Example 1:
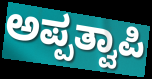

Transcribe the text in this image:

ಅಪ್ಪತ್ವಾಪಿ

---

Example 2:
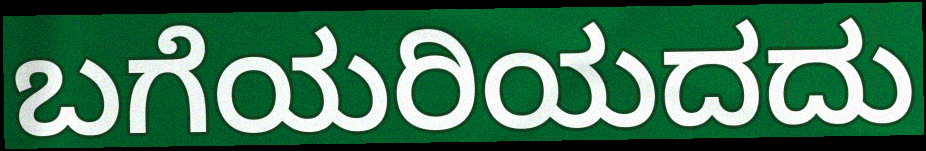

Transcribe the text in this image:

ಬಗೆಯರಿಯದದು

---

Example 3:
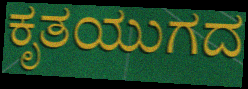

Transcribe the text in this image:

ಕೃತಯುಗದ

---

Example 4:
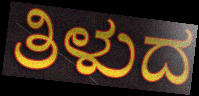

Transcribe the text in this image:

ತಿಳುದ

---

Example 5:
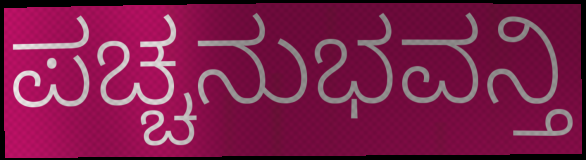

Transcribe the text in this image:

ಪಚ್ಚನುಭವನ್ತಿ